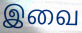
இவை